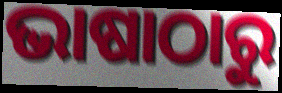
ଭାଷାଠାରୁ